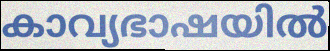
കാവ്യഭാഷയിൽ